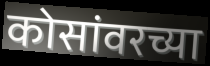
कोसांवरच्या